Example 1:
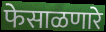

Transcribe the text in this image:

फेसाळणारे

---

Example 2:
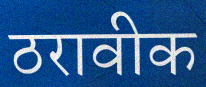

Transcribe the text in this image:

ठरावीक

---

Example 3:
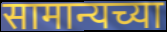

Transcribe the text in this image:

सामान्यच्या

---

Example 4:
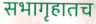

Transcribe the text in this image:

सभागृहातच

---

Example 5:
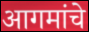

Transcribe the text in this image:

आगमांचे